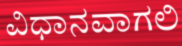
ವಿಧಾನವಾಗಲಿ